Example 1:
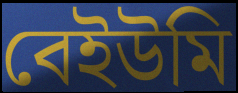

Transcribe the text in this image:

বেইউমি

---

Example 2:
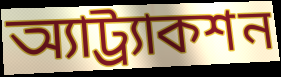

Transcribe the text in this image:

অ্যাট্র্যাকশন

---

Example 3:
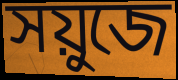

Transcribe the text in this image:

সয়ুজে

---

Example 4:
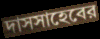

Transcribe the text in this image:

দাসসাহেবের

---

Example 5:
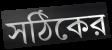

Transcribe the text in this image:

সঠিকের